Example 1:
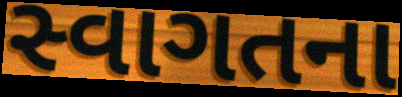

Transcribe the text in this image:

સ્વાગતના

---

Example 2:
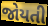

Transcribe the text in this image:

જોયતી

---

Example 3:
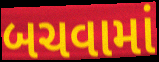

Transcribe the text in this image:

બચવામાં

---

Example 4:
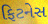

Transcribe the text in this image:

ફિટનેસ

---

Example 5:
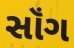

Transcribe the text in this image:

સૉંગ